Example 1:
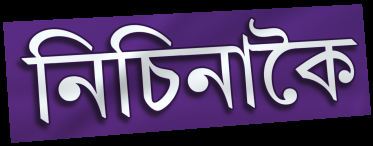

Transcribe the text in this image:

নিচিনাকৈ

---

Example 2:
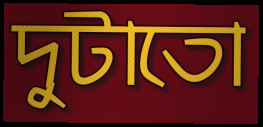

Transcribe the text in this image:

দুটাতো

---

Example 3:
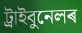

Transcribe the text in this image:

ট্ৰাইবুনেলৰ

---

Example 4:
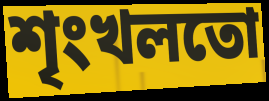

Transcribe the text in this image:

শৃংখলতো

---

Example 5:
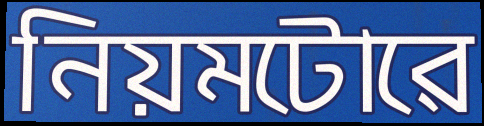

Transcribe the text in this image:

নিয়মটোৱে